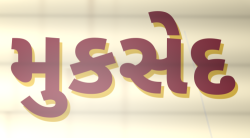
મુકસેદ